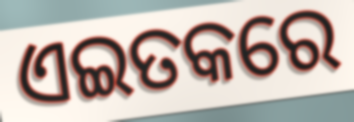
ଏଇତକରେ